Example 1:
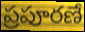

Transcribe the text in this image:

ప్రపూరణే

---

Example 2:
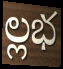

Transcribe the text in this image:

ల్లభ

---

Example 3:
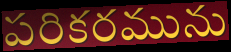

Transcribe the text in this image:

పరికరమును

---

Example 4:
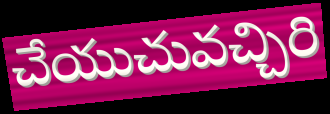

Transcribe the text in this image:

చేయుచువచ్చిరి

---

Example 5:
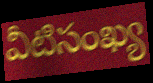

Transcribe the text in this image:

వీటిసంఖ్య